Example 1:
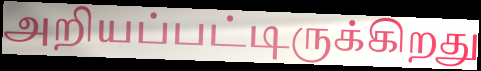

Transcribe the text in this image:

அறியப்பட்டிருக்கிறது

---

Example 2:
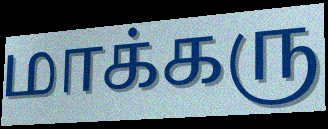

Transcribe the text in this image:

மாக்கரு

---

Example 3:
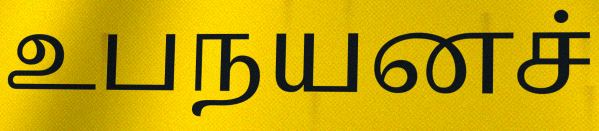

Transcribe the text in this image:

உபநயனச்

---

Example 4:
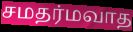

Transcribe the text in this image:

சமதர்மவாத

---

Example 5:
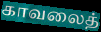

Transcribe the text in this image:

காவலைத்